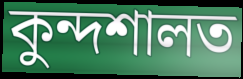
কুন্দশালত